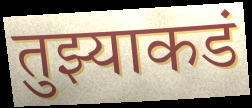
तुझ्याकडं